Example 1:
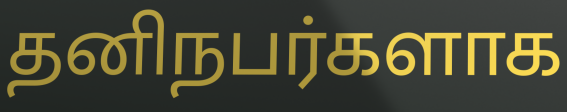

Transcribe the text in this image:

தனிநபர்களாக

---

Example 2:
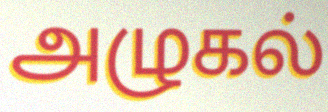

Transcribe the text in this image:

அழுகல்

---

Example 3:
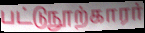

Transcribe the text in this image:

பட்டுநூற்காரர்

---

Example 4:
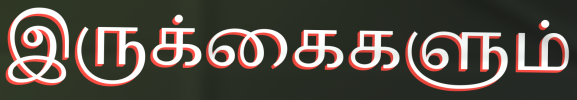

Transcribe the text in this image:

இருக்கைகளும்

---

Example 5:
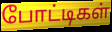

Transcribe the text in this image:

போட்டிகள்